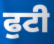
ਫੁਟੀ